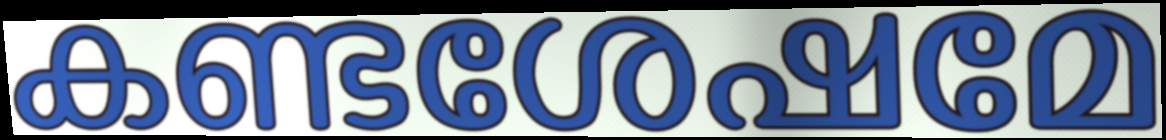
കണ്ടശേഷമേ